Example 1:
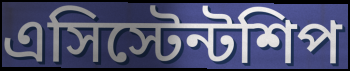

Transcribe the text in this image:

এসিস্টেন্টশিপ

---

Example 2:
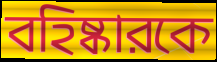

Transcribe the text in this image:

বহিষ্কারকে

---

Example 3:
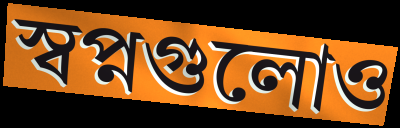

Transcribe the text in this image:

স্বপ্নগুলোও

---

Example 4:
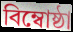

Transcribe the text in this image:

বিম্বোষ্ঠা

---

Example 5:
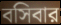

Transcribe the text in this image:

বসিবার